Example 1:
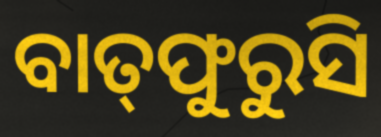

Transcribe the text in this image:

ବାତ୍‌ଫୁରୁସି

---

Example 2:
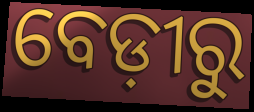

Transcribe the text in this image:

ବେଡ଼ୀରୁ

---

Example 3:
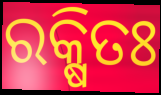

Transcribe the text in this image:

ରକ୍ଷିତଃ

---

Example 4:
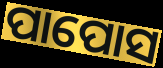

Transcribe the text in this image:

ପାପୋସ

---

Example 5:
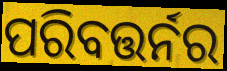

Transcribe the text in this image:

ପରିବତ୍ତର୍ନର